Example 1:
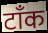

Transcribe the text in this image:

टॉंक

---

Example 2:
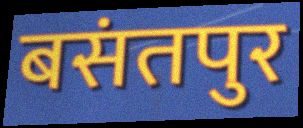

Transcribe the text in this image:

बसंतपुर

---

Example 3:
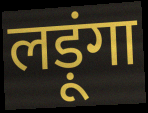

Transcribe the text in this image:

लड़ूंगा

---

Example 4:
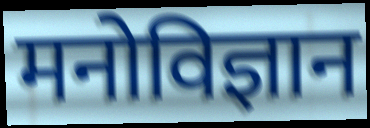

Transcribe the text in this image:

मनोविज्ञान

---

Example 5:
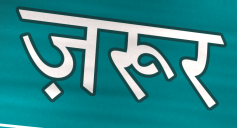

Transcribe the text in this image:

ज़रूर